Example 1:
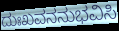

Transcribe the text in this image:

ದುಃಖವನನುಭವಿಸಿ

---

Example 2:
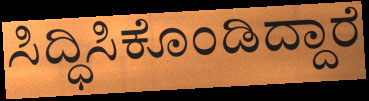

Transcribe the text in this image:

ಸಿದ್ಧಿಸಿಕೊಂಡಿದ್ದಾರೆ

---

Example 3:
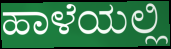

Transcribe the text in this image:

ಹಾಳೆಯಲ್ಲಿ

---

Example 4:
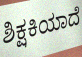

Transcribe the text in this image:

ಶಿಕ್ಷಕಿಯಾದೆ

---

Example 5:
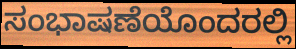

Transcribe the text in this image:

ಸಂಭಾಷಣೆಯೊಂದರಲ್ಲಿ